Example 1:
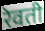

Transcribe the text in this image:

रेवती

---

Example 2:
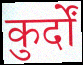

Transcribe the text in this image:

कुर्दों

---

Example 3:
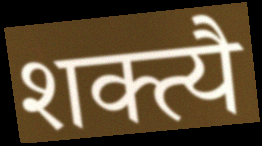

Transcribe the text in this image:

शक्त्यै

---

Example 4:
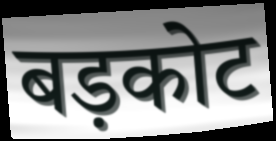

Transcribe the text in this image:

बड़कोट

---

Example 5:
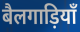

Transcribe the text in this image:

बैलगाड़ियाँ